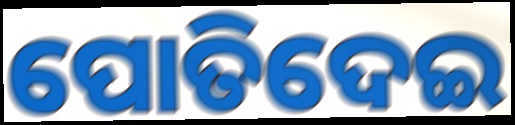
ପୋତିଦେଇ